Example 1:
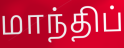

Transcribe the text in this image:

மாந்திப்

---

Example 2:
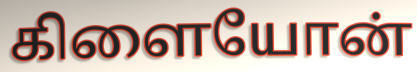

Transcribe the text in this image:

கிளையோன்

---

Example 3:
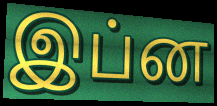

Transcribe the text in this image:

இப்ன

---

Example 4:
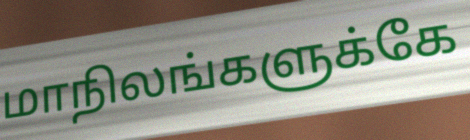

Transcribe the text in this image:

மாநிலங்களுக்கே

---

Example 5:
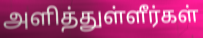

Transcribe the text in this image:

அளித்துள்ளீர்கள்